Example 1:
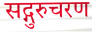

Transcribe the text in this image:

सद्गुरुचरण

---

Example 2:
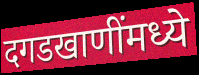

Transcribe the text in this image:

दगडखाणींमध्ये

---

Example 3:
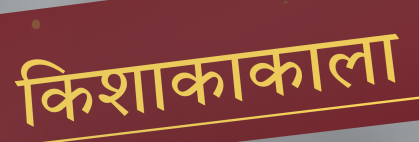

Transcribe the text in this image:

किशाकाकाला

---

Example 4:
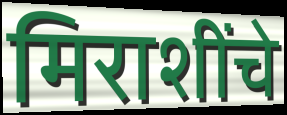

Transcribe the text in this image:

मिराशींचे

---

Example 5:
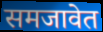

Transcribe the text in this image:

समजावेत